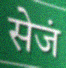
सेजं